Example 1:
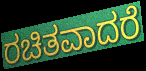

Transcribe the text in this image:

ರಚಿತವಾದರೆ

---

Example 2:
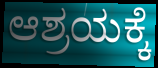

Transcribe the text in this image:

ಆಶ್ರಯಕ್ಕೆ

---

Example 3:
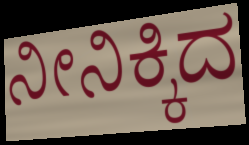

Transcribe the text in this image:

ನೀನಿಕ್ಕಿದ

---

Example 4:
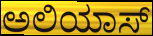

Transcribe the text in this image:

ಅಲಿಯಾಸ್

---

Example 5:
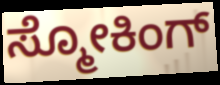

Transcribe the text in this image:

ಸ್ಮೋಕಿಂಗ್